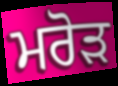
ਮਰੋੜ